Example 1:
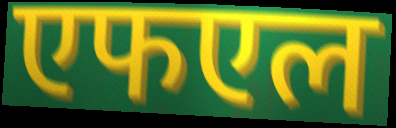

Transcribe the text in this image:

एफएल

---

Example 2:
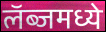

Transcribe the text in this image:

लॅब्जमध्ये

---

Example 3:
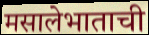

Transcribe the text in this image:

मसालेभाताची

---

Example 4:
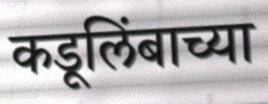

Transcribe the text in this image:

कडूलिंबाच्या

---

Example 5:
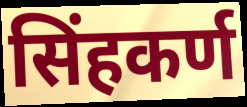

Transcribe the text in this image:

सिंहकर्ण